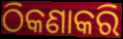
ଠିକଣାକରି